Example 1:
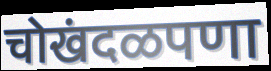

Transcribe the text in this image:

चोखंदळपणा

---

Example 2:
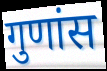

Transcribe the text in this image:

गुणांस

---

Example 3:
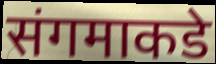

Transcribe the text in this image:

संगमाकडे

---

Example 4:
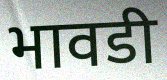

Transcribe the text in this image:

भावडी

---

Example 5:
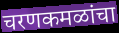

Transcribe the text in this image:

चरणकमळांचा